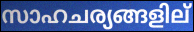
സാഹചര്യങ്ങളില്